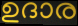
ഉദാര